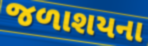
જળાશયના